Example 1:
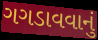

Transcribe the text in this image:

ગગડાવવાનું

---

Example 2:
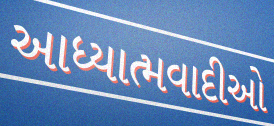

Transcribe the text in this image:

આધ્યાત્મવાદીઓ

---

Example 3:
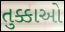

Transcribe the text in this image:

તુક્કાઓ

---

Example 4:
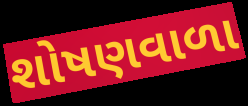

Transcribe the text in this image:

શોષણવાળા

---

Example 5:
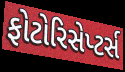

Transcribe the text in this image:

ફોટોરિસેપ્ટર્સ